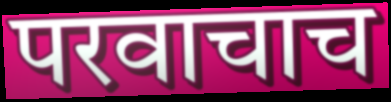
परवाचाच